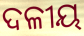
ଦଳୀୟ